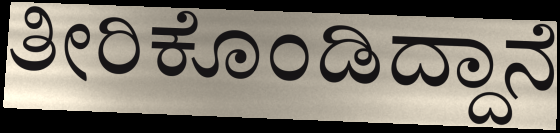
ತೀರಿಕೊಂಡಿದ್ದಾನೆ